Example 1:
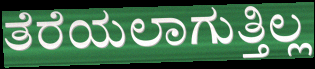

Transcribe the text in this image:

ತೆರೆಯಲಾಗುತ್ತಿಲ್ಲ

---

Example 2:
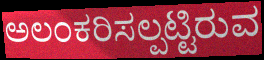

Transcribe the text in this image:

ಅಲಂಕರಿಸಲ್ಪಟ್ಟಿರುವ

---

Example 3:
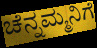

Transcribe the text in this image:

ಚೆನ್ನಮ್ಮನಿಗೆ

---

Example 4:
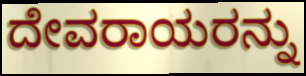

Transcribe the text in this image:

ದೇವರಾಯರನ್ನು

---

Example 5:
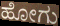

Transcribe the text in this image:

ಹೋಗು